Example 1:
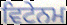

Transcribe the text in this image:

ਵਿਟੇਨਮ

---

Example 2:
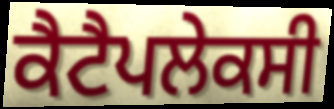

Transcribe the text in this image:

ਕੈਟੈਪਲੇਕਸੀ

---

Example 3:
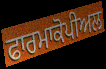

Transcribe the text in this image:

ਫਾਰਮਾਕੋਪੀਅਲ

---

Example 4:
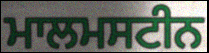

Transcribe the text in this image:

ਮਾਲਮਸਟੀਨ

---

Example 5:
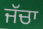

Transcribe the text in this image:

ਜੱਚਾ